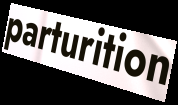
parturition